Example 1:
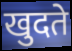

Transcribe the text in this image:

खुदते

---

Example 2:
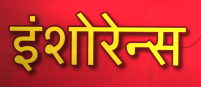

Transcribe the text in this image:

इंशोरेन्स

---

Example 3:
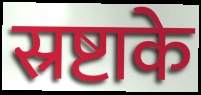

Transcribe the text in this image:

स्रष्टाके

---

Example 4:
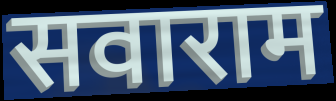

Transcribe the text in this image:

सवाराम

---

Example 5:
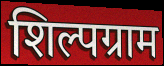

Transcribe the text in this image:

शिल्पग्राम